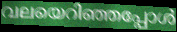
വലയെറിഞ്ഞപ്പോൾ